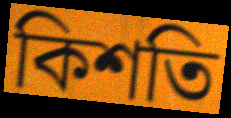
কিশতি